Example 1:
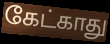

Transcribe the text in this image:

கேட்காது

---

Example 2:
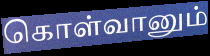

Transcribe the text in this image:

கொள்வானும்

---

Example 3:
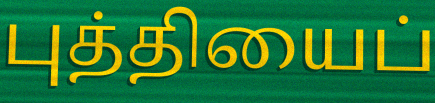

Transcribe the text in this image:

புத்தியைப்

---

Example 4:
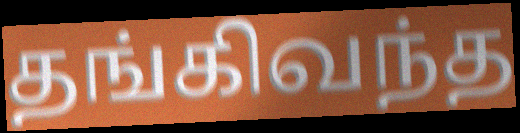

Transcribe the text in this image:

தங்கிவந்த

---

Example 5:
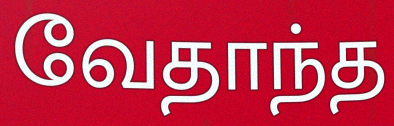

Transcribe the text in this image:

வேதாந்த